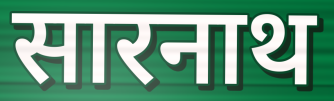
सारनाथ